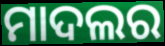
ମାଦଲର